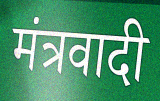
मंत्रवादी